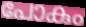
പോകും